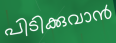
പിടിക്കുവാൻ